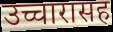
उच्चारासह